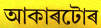
আকাৰটোৰ